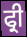
ਫ੍ਰੀ